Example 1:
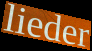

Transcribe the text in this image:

lieder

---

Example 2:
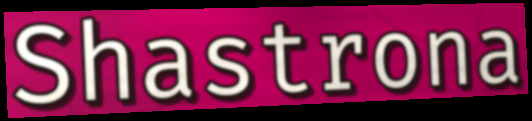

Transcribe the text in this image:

Shastrona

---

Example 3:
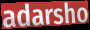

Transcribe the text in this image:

adarsho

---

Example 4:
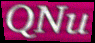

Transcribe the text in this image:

QNu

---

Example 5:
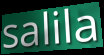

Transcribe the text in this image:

salila